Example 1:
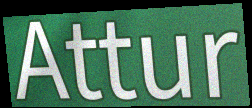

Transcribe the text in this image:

Attur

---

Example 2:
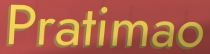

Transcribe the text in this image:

Pratimao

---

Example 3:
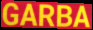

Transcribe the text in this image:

GARBA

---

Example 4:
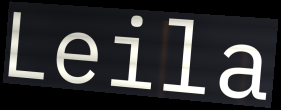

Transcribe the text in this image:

Leila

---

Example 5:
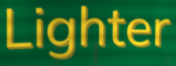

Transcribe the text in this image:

Lighter